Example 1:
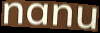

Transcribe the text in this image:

nanu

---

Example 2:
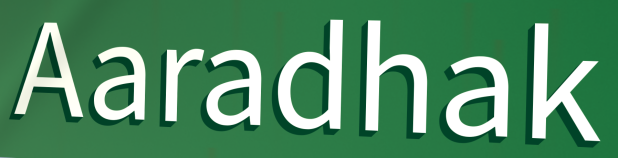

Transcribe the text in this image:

Aaradhak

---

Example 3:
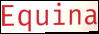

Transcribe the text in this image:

Equina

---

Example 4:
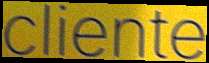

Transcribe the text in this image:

cliente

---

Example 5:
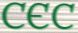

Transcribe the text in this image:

CEC